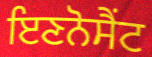
ਇਣਨੋਸੈਂਟ